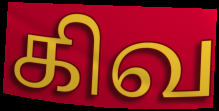
கிவ